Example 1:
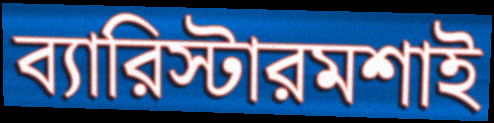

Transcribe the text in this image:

ব্যারিস্টারমশাই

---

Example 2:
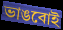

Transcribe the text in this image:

ভাঙবোই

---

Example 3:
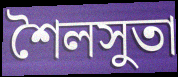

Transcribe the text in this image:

শৈলসুতা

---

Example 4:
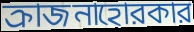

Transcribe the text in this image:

ক্রাজনাহোরকার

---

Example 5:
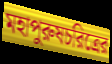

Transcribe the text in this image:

মহাপুরুষচরিত্রের